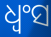
ଧ୍ଵଂସ